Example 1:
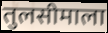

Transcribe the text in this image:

तुलसीमाला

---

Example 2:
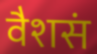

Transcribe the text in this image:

वैशसं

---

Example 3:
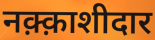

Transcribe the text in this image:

नक़्क़ाशीदार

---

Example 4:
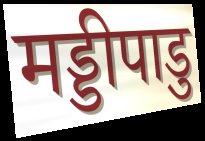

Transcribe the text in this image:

मड्डीपाडु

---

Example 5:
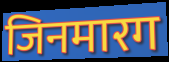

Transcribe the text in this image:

जिनमारग